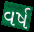
વર્ષ